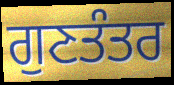
ਗੁਣਤੰਤਰ